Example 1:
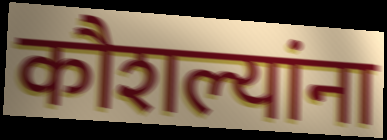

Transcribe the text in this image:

कौशल्यांना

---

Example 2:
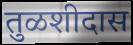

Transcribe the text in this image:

तुळशीदास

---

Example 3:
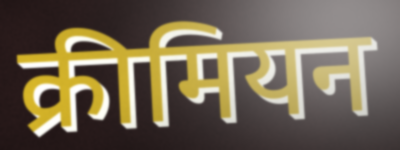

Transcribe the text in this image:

क्रीमियन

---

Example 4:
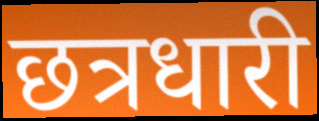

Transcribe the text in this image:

छत्रधारी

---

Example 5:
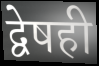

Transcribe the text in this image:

द्वेषही